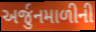
અર્જુનમાળીની